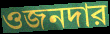
ওজনদার